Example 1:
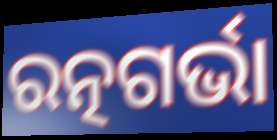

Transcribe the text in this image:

ରତ୍ନଗର୍ଭା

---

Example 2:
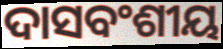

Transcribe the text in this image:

ଦାସବଂଶୀୟ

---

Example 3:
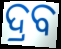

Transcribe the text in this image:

ଦ୍ରବ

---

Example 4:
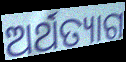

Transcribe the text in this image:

ଅର୍ଥତ୍ୟାଗ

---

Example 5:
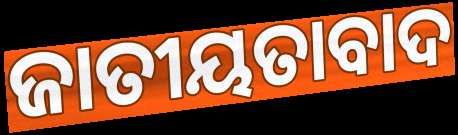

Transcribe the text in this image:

ଜାତୀୟତାବାଦ